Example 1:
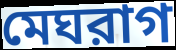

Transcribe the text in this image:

মেঘরাগ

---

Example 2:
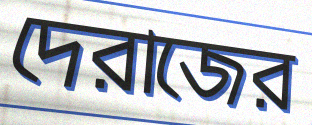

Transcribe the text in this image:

দেরাজের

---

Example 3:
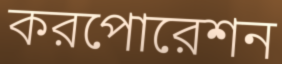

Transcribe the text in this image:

করপোরেশন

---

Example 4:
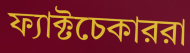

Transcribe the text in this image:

ফ্যাক্টচেকাররা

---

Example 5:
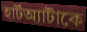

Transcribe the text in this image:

হার্টঅ্যাটাকে